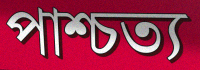
পাশ্চত্য